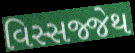
વિસ્સજ્જેથ